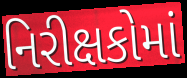
નિરીક્ષકોમાં